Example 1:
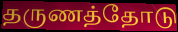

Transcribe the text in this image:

தருணத்தோடு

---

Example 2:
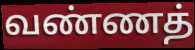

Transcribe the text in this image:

வண்ணத்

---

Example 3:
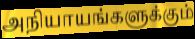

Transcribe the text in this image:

அநியாயங்களுக்கும்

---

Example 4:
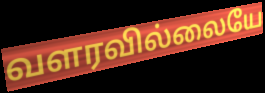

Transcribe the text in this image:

வளரவில்லையே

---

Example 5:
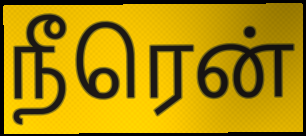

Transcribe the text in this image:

நீரென்